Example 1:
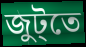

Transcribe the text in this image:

জুট্তে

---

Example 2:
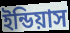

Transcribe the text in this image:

ইন্ডিয়াস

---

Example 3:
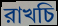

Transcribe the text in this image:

রাখচি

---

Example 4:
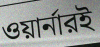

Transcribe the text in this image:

ওয়ার্নারই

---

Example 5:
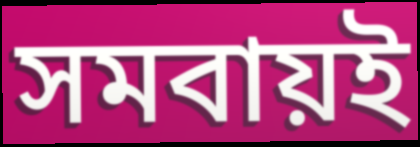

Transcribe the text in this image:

সমবায়ই